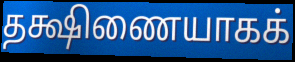
தக்ஷிணையாகக்